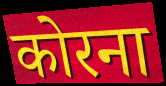
कोरना